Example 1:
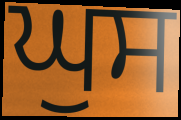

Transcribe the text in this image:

ਘੁਸ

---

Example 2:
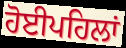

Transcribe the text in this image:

ਹੋਈਪਹਿਲਾਂ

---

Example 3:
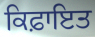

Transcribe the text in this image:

ਕਿਫ਼ਾਇਤ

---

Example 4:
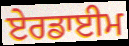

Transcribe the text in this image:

ਏਰਡਾਈਮ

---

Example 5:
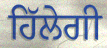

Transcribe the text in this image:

ਹਿੱਲੇਗੀ